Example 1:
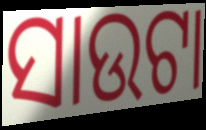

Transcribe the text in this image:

ସାଉଟା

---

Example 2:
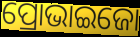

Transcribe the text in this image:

ପ୍ରୋଭାଇଜୋ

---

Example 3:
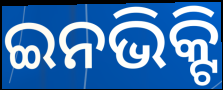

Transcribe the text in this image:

ଇନଭିକ୍ଟି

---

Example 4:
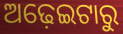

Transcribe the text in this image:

ଅଢ଼େଇଟାରୁ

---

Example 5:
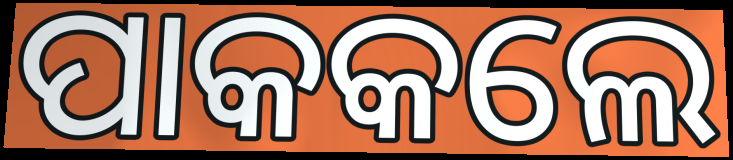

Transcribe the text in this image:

ପାକକଲେ